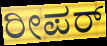
ರೀಪರ್